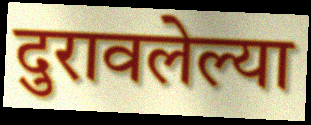
दुरावलेल्या